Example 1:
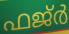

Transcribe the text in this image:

ഫജ്ർ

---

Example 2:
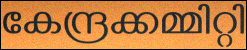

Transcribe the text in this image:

കേന്ദ്രക്കമ്മിറ്റി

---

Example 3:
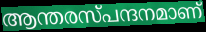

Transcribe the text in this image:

ആന്തരസ്പന്ദനമാണ്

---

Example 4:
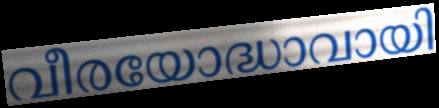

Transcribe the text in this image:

വീരയോദ്ധാവായി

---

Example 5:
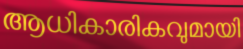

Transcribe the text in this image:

ആധികാരികവുമായി